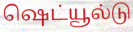
ஷெட்யூல்டு